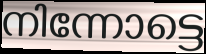
നിന്നോട്ടെ